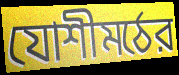
যোশীমঠের